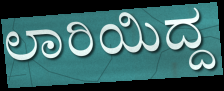
ಲಾರಿಯಿದ್ದ